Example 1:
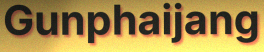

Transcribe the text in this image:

Gunphaijang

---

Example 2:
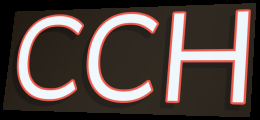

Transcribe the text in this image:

CCH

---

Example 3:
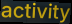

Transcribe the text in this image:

activity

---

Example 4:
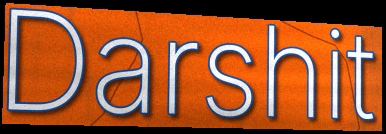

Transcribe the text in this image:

Darshit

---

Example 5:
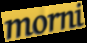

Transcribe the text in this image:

morni